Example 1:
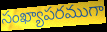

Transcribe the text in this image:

సంఖ్యాపరముగా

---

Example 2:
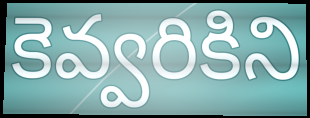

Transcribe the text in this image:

కెవ్వరికిని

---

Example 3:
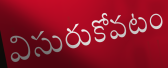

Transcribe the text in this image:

విసురుకోవటం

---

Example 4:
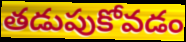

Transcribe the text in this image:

తడుపుకోవడం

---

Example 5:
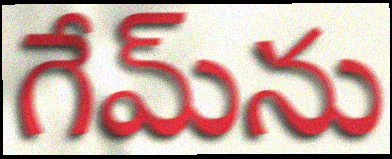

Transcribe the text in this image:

గేమ్‌ను